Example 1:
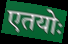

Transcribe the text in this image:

एतयोः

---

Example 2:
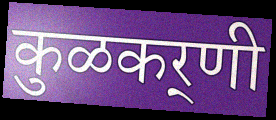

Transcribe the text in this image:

कुळकर्णी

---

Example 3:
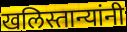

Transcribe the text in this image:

खलिस्तान्यांनी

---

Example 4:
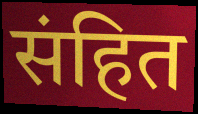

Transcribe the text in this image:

संहित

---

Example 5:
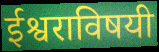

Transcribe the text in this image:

ईश्वराविषयी